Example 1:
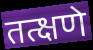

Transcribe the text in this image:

तत्क्षणे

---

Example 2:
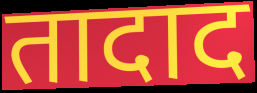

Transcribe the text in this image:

तादाद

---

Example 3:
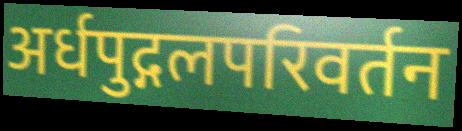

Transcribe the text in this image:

अर्धपुद्गलपरिवर्तन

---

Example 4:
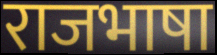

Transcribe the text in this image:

राजभाषा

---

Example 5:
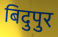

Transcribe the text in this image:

बिदुपुर